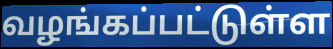
வழங்கப்பட்டுள்ள